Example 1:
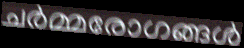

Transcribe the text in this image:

ചർമ്മരോഗങ്ങൾ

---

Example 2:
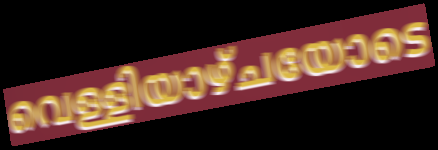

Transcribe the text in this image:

വെള്ളിയാഴ്ചയോടെ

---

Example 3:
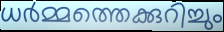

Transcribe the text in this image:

ധർമ്മത്തെക്കുറിച്ചും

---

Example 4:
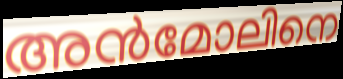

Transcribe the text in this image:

അൻമോലിനെ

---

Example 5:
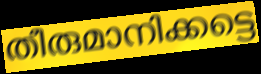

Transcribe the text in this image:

തീരുമാനിക്കട്ടെ